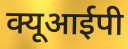
क्यूआईपी